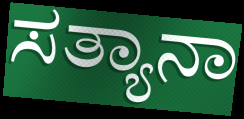
ಸತ್ಯಾನಾ